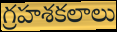
గ్రహశకలాలు